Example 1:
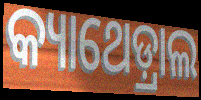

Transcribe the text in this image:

କ୍ୟାଥେଡ଼୍ରାଲ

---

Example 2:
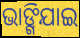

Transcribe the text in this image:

ଭାଙ୍ଗିଯାଇ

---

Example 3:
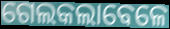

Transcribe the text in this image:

ଗେଲକଲାବେଳେ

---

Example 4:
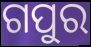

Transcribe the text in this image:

ଗପୁର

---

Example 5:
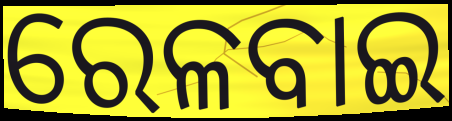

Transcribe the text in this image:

ରେଳବାଇ